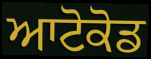
ਆਟੋਕੋਡ